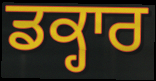
ਡਕ੍ਹਾਰ